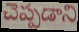
చెప్పడాని